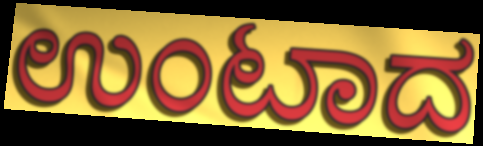
ಉಂಟಾದ